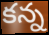
కన్న